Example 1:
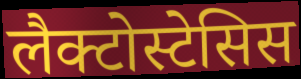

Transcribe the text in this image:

लैक्टोस्टेसिस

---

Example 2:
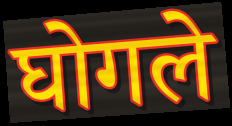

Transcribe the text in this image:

घोगले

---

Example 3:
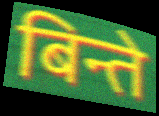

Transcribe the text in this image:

बिन्ते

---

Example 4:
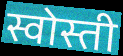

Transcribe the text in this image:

स्वोस्ती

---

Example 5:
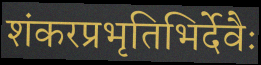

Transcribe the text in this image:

शंकरप्रभृतिभिर्देवैः